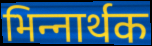
भिन्नार्थक